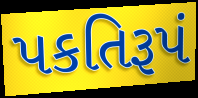
પકતિરૂપં